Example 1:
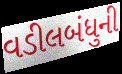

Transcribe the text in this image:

વડીલબંધુની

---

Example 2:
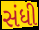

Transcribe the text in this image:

સંધી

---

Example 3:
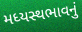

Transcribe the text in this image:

મધ્યસ્થભાવનું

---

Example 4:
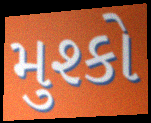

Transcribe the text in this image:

મુશ્કો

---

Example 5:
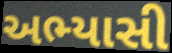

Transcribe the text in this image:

અભ્યાસી